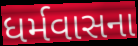
ધર્મવાસના